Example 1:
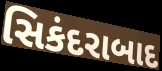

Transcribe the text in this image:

સિકંદરાબાદ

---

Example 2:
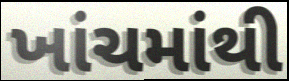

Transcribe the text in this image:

ખાંચમાંથી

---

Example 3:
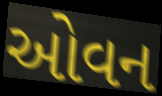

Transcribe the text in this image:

ઓવન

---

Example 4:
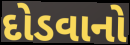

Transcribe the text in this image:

દોડવાનો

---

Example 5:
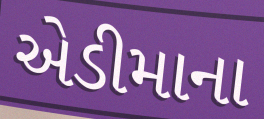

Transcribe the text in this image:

એડીમાના